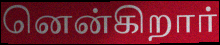
னென்கிறார்